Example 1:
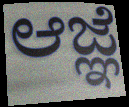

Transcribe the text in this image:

ಆಜ್ಞೆ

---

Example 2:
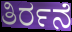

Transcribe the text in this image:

ತಿರ್ರನೆ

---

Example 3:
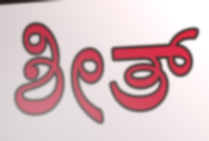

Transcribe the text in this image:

ಶೀತ್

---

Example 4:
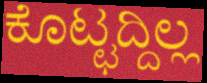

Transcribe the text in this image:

ಕೊಟ್ಟದ್ದಿಲ್ಲ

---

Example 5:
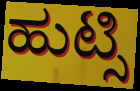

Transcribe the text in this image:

ಹುಟ್ಸಿ